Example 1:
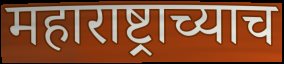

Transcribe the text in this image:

महाराष्ट्राच्याच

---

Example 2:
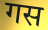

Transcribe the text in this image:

गस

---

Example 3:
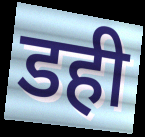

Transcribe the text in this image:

डही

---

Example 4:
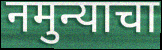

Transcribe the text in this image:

नमुन्याचा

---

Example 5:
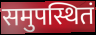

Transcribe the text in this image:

समुपस्थितं